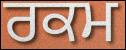
ਰਕਮ